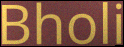
Bholi